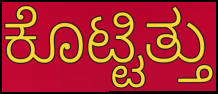
ಕೊಟ್ಟಿತ್ತು